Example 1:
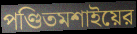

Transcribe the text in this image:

পণ্ডিতমশাইয়ের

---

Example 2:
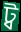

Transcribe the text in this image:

ট্ব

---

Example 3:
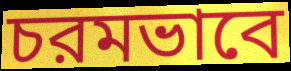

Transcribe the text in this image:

চরমভাবে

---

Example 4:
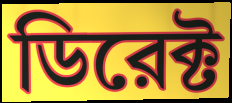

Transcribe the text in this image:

ডিরেক্ট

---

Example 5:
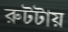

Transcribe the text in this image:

রুটটায়